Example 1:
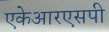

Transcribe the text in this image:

एकेआरएसपी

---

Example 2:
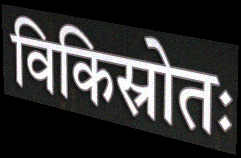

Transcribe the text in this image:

विकिस्रोतः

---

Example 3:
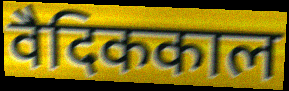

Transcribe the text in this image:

वैदिककाल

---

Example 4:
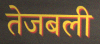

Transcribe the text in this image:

तेजबली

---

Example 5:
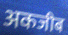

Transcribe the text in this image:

अकजीब